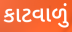
કાટવાળું